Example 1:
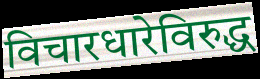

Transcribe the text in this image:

विचारधारेविरुद्ध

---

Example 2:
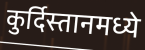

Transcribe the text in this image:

कुर्दिस्तानमध्ये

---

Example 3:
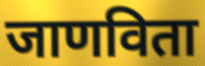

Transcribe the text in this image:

जाणविता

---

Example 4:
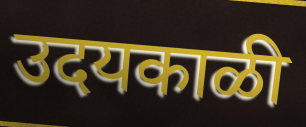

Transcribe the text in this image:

उदयकाळी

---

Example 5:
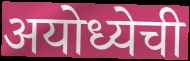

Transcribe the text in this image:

अयोध्येची